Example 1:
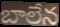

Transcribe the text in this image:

బాలేన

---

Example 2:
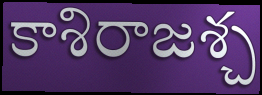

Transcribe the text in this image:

కాశిరాజశ్చ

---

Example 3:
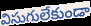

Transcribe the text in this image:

విసుగులేకుండా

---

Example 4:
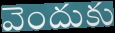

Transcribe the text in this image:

వెందుకు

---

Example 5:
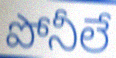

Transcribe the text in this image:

పోనీలే